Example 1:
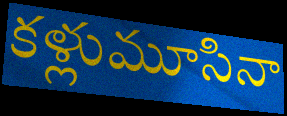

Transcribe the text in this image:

కళ్లుమూసినా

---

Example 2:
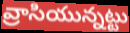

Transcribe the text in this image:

వ్రాసియున్నట్టు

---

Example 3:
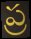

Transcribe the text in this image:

ప్ర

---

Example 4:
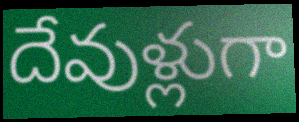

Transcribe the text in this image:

దేవుళ్లుగా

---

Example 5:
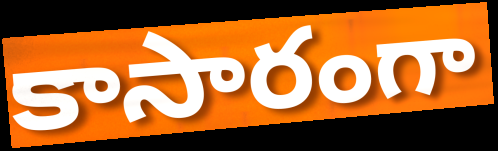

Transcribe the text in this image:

కాసారంగా